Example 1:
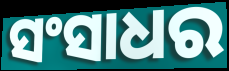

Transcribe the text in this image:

ସଂସାଧର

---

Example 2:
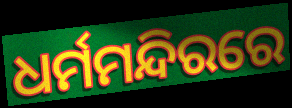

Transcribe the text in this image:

ଧର୍ମମନ୍ଦିରରେ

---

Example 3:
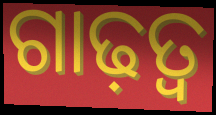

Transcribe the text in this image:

ଗାଢ଼ତ୍ବ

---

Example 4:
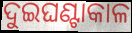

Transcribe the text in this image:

ଦୁଇଘଣ୍ଟାକାଳ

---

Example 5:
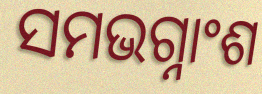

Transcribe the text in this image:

ସମଭଗ୍ନାଂଶ